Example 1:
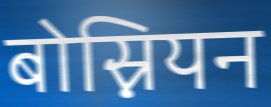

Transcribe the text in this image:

बोस्नियन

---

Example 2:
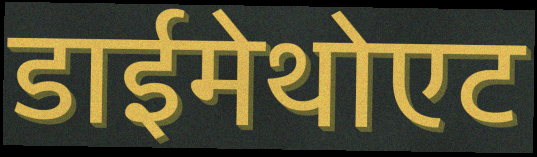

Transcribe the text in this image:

डाईमेथोएट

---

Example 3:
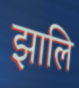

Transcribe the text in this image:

झालि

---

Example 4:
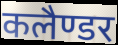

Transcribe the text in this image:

कलैण्डर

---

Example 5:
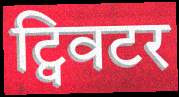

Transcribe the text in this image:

ट्विवटर